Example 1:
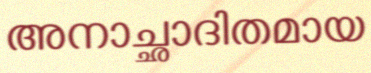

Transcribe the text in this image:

അനാച്ഛാദിതമായ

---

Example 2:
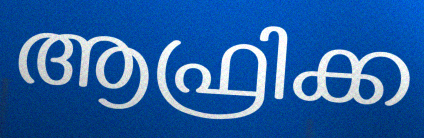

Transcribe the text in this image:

ആഫ്രിക്ക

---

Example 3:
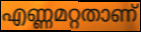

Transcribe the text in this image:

എണ്ണമറ്റതാണ്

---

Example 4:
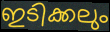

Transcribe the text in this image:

ഇടിക്കലും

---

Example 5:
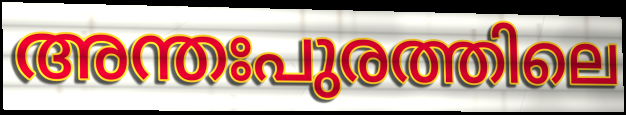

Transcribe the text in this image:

അന്തഃപുരത്തിലെ